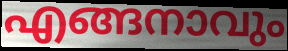
എങ്ങനാവും